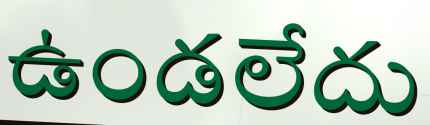
ఉండలేదు